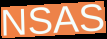
NSAS